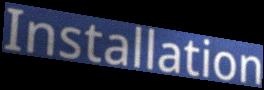
Installation